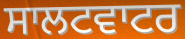
ਸਾਲਟਵਾਟਰ